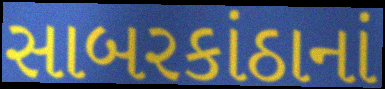
સાબરકાંઠાનાં